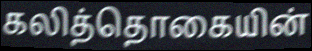
கலித்தொகையின்